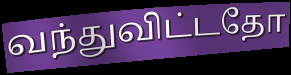
வந்துவிட்டதோ